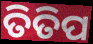
ତିତିପ